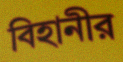
বিহানীর